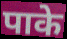
पाके